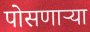
पोसणाऱ्या